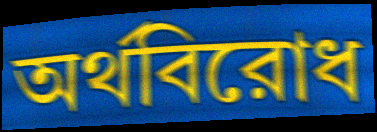
অর্থবিরোধ